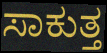
ಸಾಕುತ್ತ